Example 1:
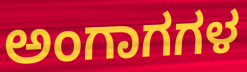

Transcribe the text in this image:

ಅಂಗಾಗಗಳ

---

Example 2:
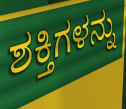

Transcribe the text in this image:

ಶಕ್ತಿಗಳನ್ನು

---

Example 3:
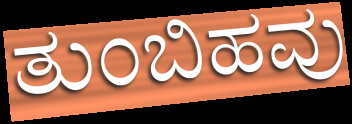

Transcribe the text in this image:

ತುಂಬಿಹವು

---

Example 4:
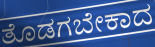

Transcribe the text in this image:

ತೊಡಗಬೇಕಾದ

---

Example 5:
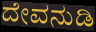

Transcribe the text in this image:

ದೇವನುಡಿ